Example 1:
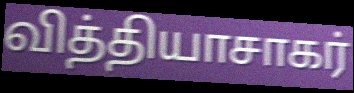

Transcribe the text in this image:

வித்தியாசாகர்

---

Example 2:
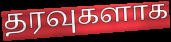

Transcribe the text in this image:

தரவுகளாக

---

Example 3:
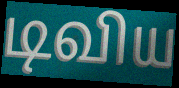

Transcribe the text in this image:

டிவிய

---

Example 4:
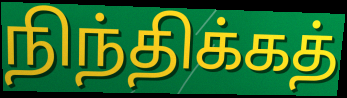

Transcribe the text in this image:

நிந்திக்கத்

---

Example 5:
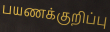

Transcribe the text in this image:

பயணக்குறிப்பு